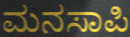
ಮನಸಾಪಿ